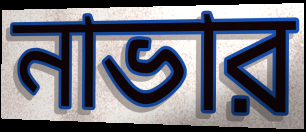
নাভার